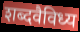
शब्दवैविध्य